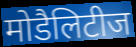
मोडैलिटीज